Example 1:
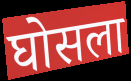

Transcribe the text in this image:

घोसला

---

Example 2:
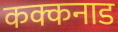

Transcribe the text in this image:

कक्कनाड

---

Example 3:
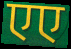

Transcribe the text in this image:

एए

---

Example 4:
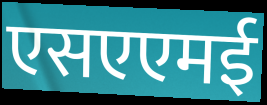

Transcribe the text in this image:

एसएएमई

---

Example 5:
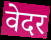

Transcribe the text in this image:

वेदर